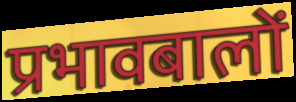
प्रभावबालों